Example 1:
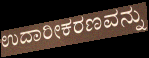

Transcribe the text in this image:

ಉದಾರೀಕರಣವನ್ನು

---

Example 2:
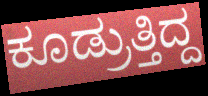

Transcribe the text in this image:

ಕೂಡ್ರುತ್ತಿದ್ದ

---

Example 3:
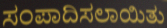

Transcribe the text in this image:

ಸಂಪಾದಿಸಲಾಯಿತು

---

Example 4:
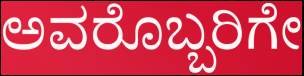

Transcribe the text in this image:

ಅವರೊಬ್ಬರಿಗೇ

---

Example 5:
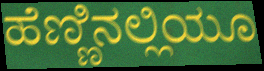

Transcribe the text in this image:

ಹೆಣ್ಣಿನಲ್ಲಿಯೂ